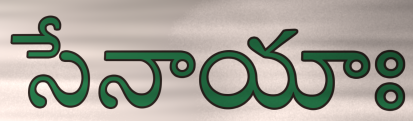
సేనాయాః